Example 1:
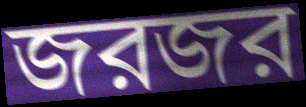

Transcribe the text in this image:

জরজর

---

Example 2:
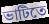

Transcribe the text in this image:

ভাটিতে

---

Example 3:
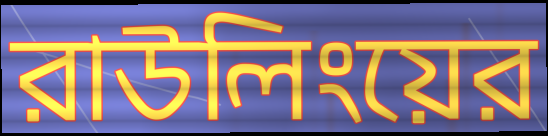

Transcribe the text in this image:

রাউলিংয়ের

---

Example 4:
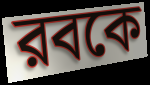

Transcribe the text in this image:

রবকে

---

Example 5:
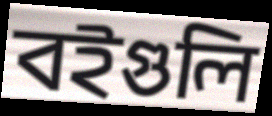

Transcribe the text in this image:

বইগুলি